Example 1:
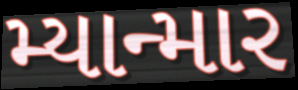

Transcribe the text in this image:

મ્યાન્માર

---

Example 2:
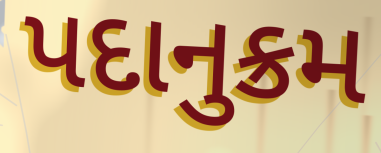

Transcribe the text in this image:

પદાનુક્રમ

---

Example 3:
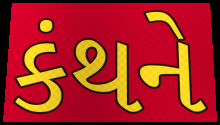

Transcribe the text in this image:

કંથને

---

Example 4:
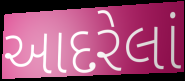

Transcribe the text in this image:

આદરેલાં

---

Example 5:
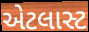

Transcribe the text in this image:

એટલાસ્ટ